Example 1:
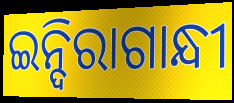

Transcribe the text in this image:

ଇନ୍ଦିରାଗାନ୍ଧୀ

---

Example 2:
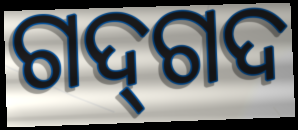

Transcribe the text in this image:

ଗଦ୍‌ଗଦ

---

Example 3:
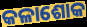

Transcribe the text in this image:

କଳାଶୋକ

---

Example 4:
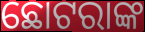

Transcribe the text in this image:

ଛୋଟରାଙ୍କ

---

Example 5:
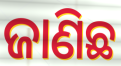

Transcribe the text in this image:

ଜାଣିଛ